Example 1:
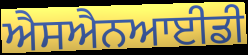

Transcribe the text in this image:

ਐਸਐਨਆਈਡੀ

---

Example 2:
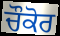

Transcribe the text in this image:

ਚੌਕੋਰ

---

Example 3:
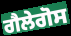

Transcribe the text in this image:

ਗੈਲੇਗੋਸ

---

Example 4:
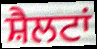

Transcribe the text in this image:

ਸ਼ੈਲਟਾਂ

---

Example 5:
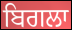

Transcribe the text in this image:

ਬਿਗਲਾ